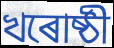
খৰোষ্ঠী